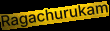
Ragachurukam